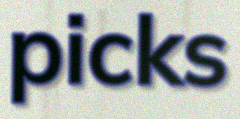
picks